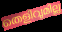
തെളിവുമില്ല